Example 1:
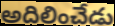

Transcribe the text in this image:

అదిలించేడు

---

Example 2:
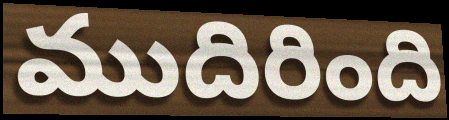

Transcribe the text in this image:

ముదిరింది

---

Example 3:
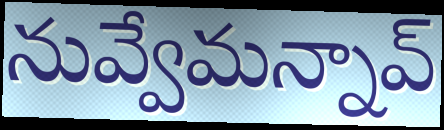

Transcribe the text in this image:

నువ్వేమన్నావ్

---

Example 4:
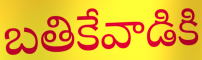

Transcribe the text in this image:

బతికేవాడికి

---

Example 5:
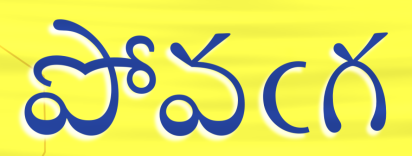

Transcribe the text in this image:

పోవఁగ